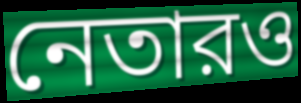
নেতারও